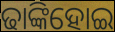
ଢାଙ୍କିହୋଇ